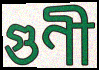
গুণী